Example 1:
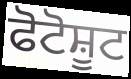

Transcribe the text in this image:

ਫੋਟੋਸ਼ੂਟ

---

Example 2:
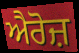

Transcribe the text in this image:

ਐਰੋਜ਼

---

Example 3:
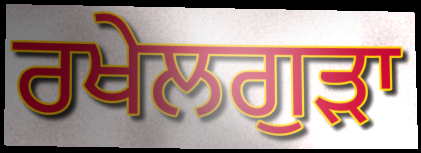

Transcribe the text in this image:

ਰਖੇਲਗੁੜਾ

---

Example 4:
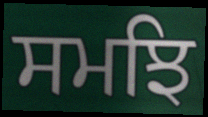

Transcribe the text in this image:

ਸਮਝਿ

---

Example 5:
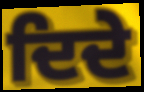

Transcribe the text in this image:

ਦਿਦੇ